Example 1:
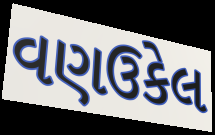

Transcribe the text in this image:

વણઉકેલ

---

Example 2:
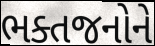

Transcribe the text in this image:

ભક્તજનોને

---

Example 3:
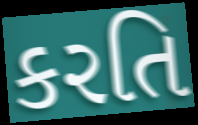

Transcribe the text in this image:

કરતિ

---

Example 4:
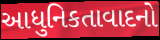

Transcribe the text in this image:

આધુનિકતાવાદનો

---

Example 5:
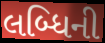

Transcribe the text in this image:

લબ્ધિની